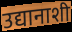
उद्यानाशी